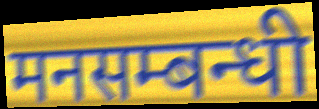
मनसम्बन्धी